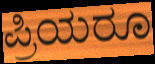
ಪ್ರಿಯರೂ